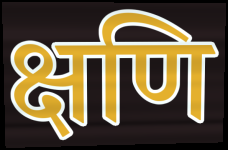
क्षणि